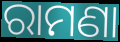
ରାମଣା